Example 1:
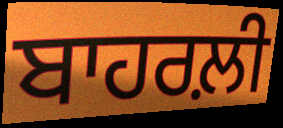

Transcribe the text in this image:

ਬਾਹਰਲ਼ੀ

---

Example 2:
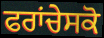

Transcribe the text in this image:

ਫਰਾਂਚੇਸਕੋ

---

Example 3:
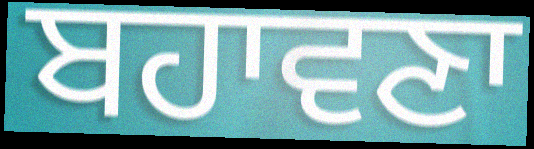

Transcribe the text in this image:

ਬਹਾਵਣਾ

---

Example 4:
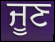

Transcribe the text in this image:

ਜੂਣ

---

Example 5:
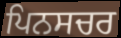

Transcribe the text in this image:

ਪਿਨਸਚਰ